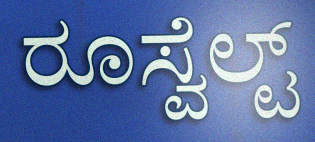
ರೂಸ್ವೆಲ್ಟ್